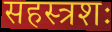
सहस्त्रशः